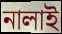
নালাই